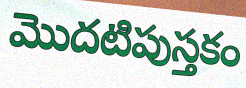
మొదటిపుస్తకం